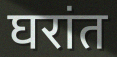
घरांत